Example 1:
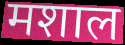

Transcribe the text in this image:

मशाल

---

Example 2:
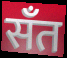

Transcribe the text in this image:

सँत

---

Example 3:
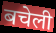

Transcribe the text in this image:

बचेली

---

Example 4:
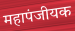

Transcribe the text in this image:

महापंजीयक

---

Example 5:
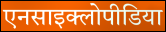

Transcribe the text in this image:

एनसाइक्लोपीडिया